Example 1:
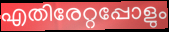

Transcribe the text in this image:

എതിരേറ്റപ്പോളും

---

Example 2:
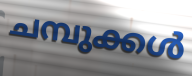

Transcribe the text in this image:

ചമ്പുക്കൾ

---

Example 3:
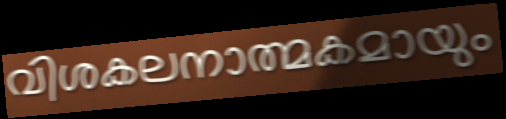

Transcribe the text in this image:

വിശകലനാത്മകമായും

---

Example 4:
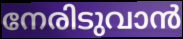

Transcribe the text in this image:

നേരിടുവാൻ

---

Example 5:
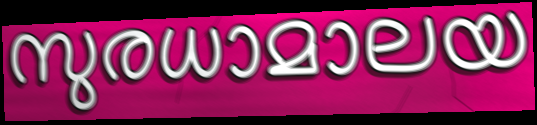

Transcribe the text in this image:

സുരധാമാലയ